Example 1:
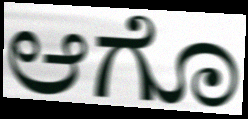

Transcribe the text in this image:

ಆಗೊ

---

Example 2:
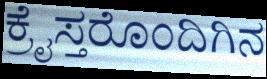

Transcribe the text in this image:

ಕ್ರೈಸ್ತರೊಂದಿಗಿನ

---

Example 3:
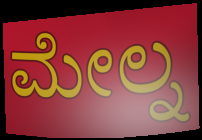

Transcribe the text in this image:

ಮೇಲ್ನ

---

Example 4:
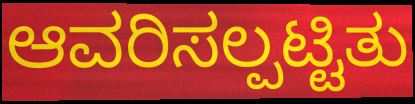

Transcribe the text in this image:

ಆವರಿಸಲ್ಪಟ್ಟಿತು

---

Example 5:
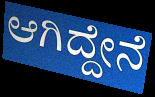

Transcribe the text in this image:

ಆಗಿದ್ದೇನೆ